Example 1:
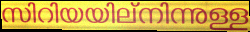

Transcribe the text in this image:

സിറിയയില്നിന്നുള്ള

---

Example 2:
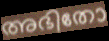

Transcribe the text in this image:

അഭിതോ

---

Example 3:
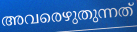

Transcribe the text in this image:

അവരെഴുതുന്നത്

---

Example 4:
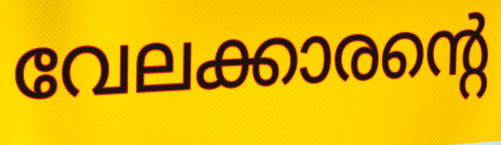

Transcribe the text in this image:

വേലക്കാരന്റെ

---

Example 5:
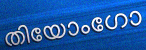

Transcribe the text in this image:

തിയോംഗോ